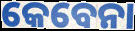
କେବେନା